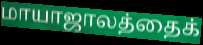
மாயாஜாலத்தைக்